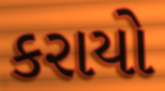
કરાયો